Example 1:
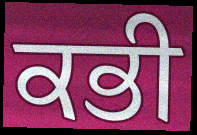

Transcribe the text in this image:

ਕਭੀ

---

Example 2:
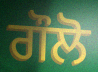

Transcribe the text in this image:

ਗੌਲੋ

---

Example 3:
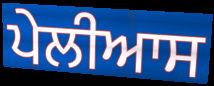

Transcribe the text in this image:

ਪੇਲੀਆਸ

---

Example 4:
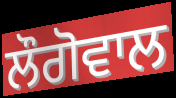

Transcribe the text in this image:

ਲੌਗੋਵਾਲ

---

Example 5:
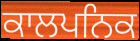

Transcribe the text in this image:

ਕਾਲਪਨਿਕ